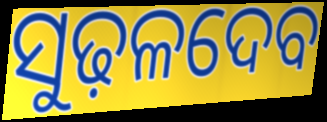
ସୁଢ଼ଳଦେବ